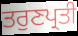
ਤਰੁਣਪ੍ਰਤੀ